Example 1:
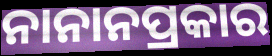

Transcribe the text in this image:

ନାନାନପ୍ରକାର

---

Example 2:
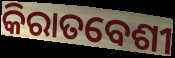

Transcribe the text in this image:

କିରାତବେଶୀ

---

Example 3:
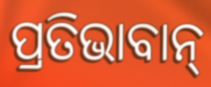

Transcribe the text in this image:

ପ୍ରତିଭାବାନ୍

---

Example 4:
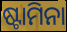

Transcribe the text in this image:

ଷ୍ଟାମିନା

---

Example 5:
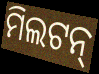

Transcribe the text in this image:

ମିଲଟନ୍